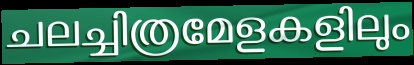
ചലച്ചിത്രമേളകളിലും